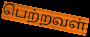
பெற்றவள்